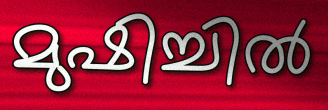
മുഷിച്ചിൽ